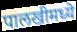
पालखीमध्ये